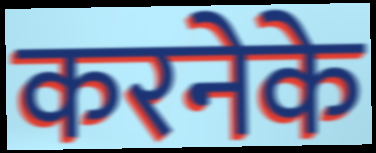
करनेके